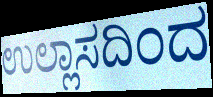
ಉಲ್ಲಾಸದಿಂದ